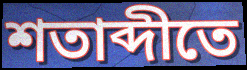
শতাব্দীতে